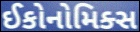
ઈકોનોમિક્સ